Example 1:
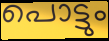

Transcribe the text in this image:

പൊട്ടും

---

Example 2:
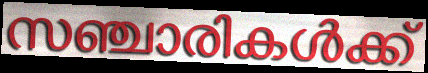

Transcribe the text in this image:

സഞ്ചാരികൾക്ക്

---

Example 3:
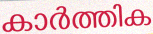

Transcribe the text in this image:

കാർത്തിക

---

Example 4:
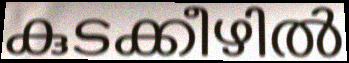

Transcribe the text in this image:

കുടക്കീഴിൽ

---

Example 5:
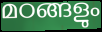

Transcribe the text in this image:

മഠങ്ങളും